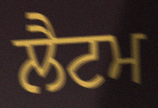
ਲੈਟਮ